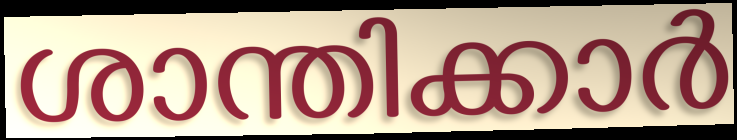
ശാന്തിക്കാർ